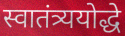
स्वातंत्र्ययोद्धे